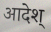
आदेश्